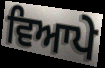
ਵਿਆਪੇ